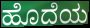
ಹೊದೆಯ